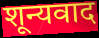
शून्यवाद